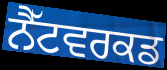
ਨੈੱਟਵਰਕਡ